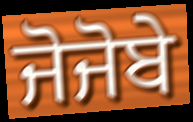
ਜੋਜੋਬੇ